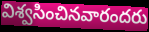
విశ్వసించినవారందరు